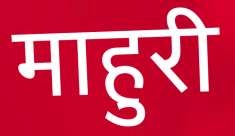
माहुरी